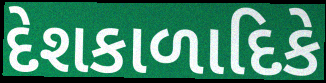
દેશકાળાદિકે